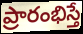
ప్రారంభిస్తే